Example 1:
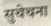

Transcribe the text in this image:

सुचेचना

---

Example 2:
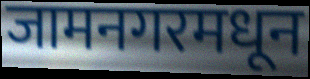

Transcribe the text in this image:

जामनगरमधून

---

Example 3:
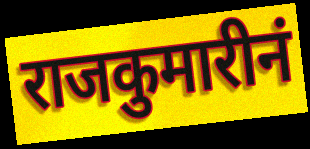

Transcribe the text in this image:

राजकुमारीनं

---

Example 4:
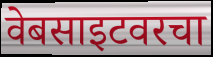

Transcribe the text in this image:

वेबसाइटवरचा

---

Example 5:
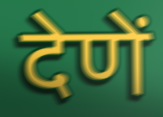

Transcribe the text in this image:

देणें